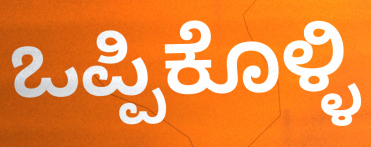
ಒಪ್ಪಿಕೊಳ್ಳಿ